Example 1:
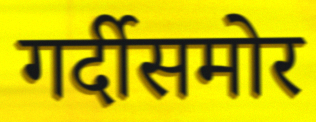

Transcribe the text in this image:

गर्दीसमोर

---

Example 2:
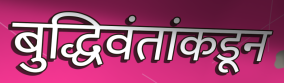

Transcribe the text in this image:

बुद्धिवंतांकडून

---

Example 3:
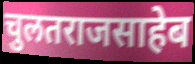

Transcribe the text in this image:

चुलतराजसाहेब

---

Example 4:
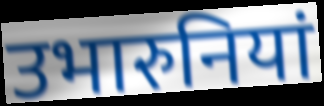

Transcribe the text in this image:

उभारुनियां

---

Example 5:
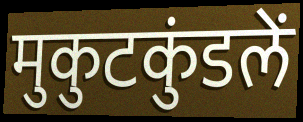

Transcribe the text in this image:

मुकुटकुंडलें